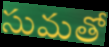
సుమతో